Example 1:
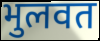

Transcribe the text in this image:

भुलवत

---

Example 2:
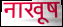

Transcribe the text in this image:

नाखूष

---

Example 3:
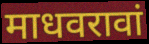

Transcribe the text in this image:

माधवरावां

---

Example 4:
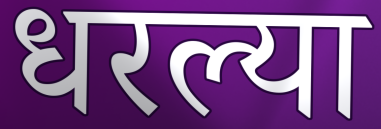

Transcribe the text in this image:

धरल्या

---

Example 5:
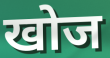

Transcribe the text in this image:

खोज